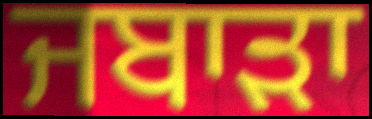
ਜਬਾੜਾ